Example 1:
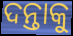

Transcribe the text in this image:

ଦନ୍ତାକୁ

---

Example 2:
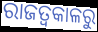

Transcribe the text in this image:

ରାଜତ୍ଵକାଳରୁ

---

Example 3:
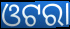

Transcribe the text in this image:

ଓଟରା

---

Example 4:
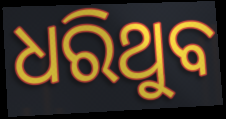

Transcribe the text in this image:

ଧରିଥୁବ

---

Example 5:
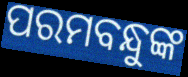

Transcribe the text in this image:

ପରମବନ୍ଧୁଙ୍କ